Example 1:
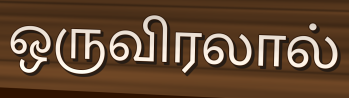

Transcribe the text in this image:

ஒருவிரலால்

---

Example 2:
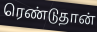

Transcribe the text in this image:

ரெண்டுதான்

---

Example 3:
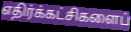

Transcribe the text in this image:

எதிர்க்கட்சிகளைப்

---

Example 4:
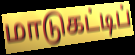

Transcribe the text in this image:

மாடுகட்டிப்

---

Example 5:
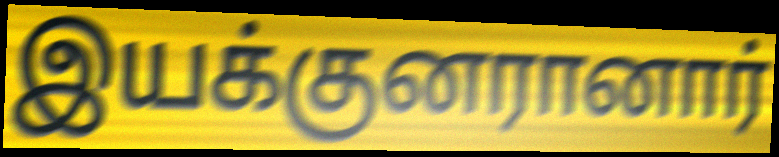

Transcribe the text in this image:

இயக்குனரானார்